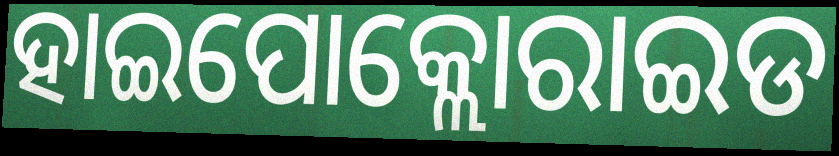
ହାଇପୋକ୍ଲୋରାଇଡ